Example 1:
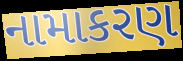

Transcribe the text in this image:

નામાકરણ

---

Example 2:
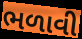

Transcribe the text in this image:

ભળાવી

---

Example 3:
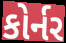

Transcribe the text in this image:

કોર્નર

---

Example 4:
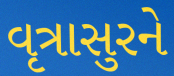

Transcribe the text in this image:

વૃત્રાસુરને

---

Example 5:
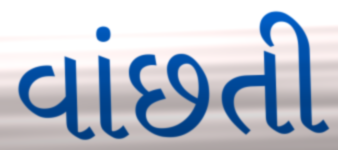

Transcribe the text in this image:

વાંછતી